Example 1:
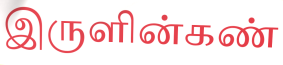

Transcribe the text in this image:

இருளின்கண்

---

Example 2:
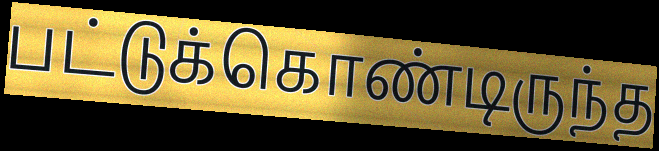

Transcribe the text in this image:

பட்டுக்கொண்டிருந்த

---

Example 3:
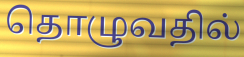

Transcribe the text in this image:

தொழுவதில்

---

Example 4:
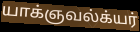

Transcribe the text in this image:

யாக்ஞவல்க்யர்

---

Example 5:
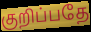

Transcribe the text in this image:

குறிப்பதே